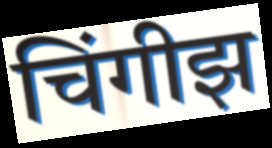
चिंगीझ